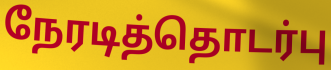
நேரடித்தொடர்பு